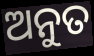
ଅନୁତ